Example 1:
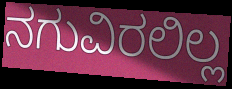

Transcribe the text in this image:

ನಗುವಿರಲಿಲ್ಲ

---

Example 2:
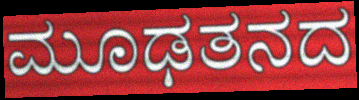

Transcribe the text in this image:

ಮೂಢತನದ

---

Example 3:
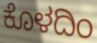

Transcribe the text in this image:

ಕೊಳದಿಂ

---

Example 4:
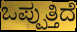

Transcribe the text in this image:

ಒಪ್ಪುತ್ತಿದೆ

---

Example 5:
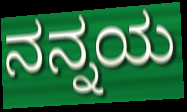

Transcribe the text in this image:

ನನ್ನಯ